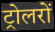
ट्रोलरों